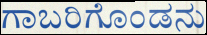
ಗಾಬರಿಗೊಂಡನು